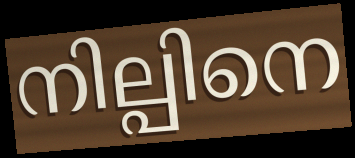
നില്പിനെ